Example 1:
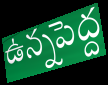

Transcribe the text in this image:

ఉన్నపెద్ద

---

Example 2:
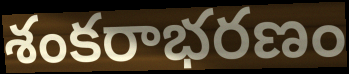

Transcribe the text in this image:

శంకరాభరణం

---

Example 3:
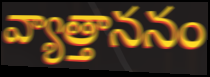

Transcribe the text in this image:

వ్యాత్తాననం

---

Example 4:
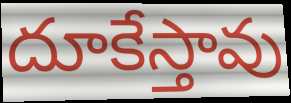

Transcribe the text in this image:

దూకేస్తావు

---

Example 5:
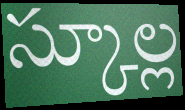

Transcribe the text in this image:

స్కూల్ల